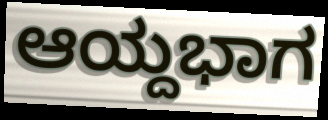
ಆಯ್ದಭಾಗ